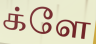
க்ளே